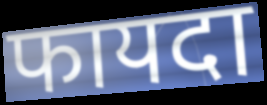
फायदा